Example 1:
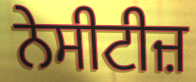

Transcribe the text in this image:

ਨੇਸੀਟੀਜ਼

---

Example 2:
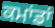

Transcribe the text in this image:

ਕਮਾਂਡਾਂ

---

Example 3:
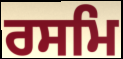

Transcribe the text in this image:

ਰਸਮਿ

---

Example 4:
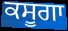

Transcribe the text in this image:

ਕਸੂਗਾ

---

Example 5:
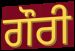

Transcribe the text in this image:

ਗੌਰੀ